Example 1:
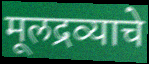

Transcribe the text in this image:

मूलद्रव्याचे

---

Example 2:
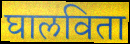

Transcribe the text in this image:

घालविता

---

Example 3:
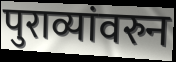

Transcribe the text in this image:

पुराव्यांवरुन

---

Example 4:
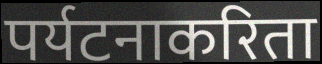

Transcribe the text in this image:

पर्यटनाकरिता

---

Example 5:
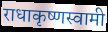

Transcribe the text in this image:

राधाकृष्णस्वामी